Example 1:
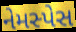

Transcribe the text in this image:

નેમસ્પેસ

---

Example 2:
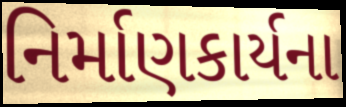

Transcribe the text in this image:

નિર્માણકાર્યના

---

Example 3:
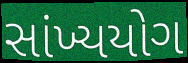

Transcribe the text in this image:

સાંખ્યયોગ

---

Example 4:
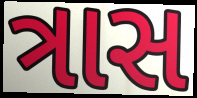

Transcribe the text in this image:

ત્રાસ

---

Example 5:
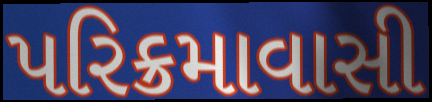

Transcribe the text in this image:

પરિક્રમાવાસી